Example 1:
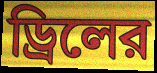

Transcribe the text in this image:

ড্রিলের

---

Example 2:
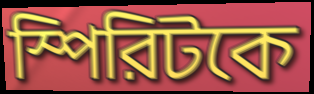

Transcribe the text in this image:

স্পিরিটকে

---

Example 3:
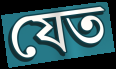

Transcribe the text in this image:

যেত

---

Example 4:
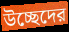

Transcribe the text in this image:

উচ্ছেদের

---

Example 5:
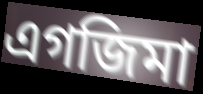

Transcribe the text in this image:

এগজিমা